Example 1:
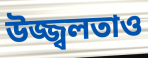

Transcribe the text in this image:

উজ্জ্বলতাও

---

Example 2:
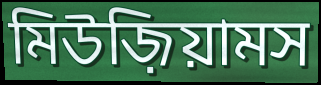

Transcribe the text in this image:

মিউজ়িয়ামস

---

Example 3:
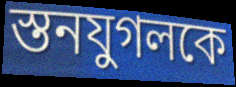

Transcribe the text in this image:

স্তনযুগলকে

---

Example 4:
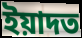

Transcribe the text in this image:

ইয়াদত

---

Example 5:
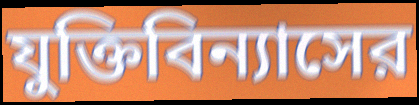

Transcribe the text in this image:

যুক্তিবিন্যাসের